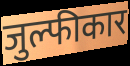
जुल्फीकार